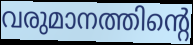
വരുമാനത്തിന്റെ